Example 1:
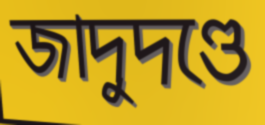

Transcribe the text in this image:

জাদুদণ্ডে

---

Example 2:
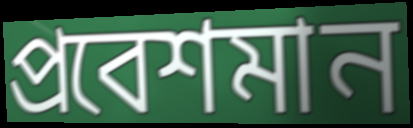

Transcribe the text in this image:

প্রবেশমান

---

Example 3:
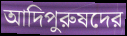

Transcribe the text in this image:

আদিপুরুষদের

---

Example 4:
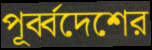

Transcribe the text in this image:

পূর্ব্বদেশের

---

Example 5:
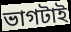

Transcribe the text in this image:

ভাগটাই